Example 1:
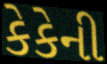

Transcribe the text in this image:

કેકેની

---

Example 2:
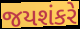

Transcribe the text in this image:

જયશંકરે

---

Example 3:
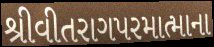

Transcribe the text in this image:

શ્રીવીતરાગપરમાત્માના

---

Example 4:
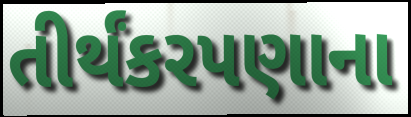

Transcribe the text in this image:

તીર્થંકરપણાના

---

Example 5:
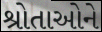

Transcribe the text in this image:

શ્રોતાઓને